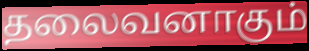
தலைவனாகும்